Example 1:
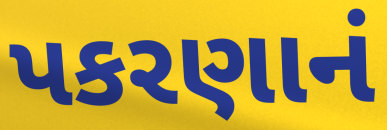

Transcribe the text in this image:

પકરણાનં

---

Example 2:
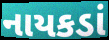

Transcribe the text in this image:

નાયકડાં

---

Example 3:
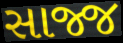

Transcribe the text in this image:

સાજ્જ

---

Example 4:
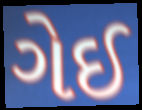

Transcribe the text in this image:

ગેઈ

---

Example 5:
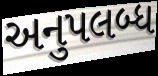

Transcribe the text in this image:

અનુપલબ્ધ